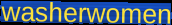
washerwomen